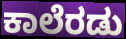
ಕಾಲೆರಡು